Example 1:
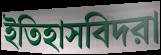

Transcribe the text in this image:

ইতিহাসবিদরা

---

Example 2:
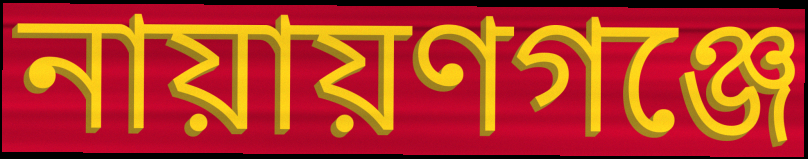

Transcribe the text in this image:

নায়ায়ণগঞ্জে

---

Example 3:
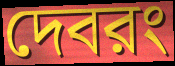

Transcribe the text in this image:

দেবরং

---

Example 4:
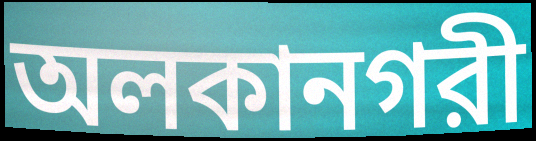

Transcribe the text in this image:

অলকানগরী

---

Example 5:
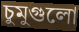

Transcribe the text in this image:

চুমুগুলো